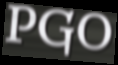
PGO